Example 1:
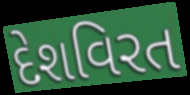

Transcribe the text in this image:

દેશવિરત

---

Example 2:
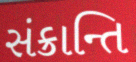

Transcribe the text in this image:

સંક્રાન્તિ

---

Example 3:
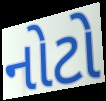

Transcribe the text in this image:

નોટો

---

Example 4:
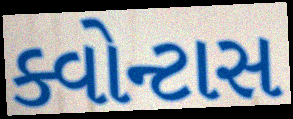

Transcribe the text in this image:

ક્વોન્ટાસ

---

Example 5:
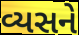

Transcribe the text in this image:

વ્યસને